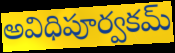
అవిధిపూర్వకమ్